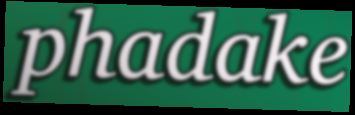
phadake